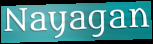
Nayagan